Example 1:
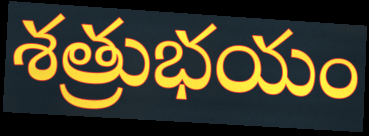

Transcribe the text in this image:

శత్రుభయం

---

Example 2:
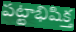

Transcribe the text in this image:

పట్టాభిషిక్త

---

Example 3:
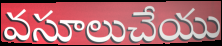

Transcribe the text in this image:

వసూలుచేయు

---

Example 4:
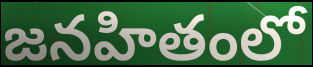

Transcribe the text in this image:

జనహితంలో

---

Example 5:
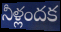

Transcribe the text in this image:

నీళ్లందక